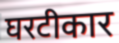
घरटीकार